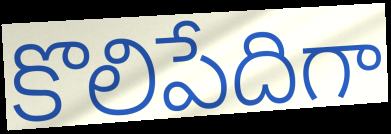
కొలిపేదిగా